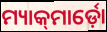
ମ୍ୟାକ୍‍ମାର୍ଡ଼ୋ